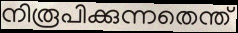
നിരൂപിക്കുന്നതെന്ത്